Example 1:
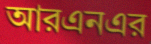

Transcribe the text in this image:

আরএনএর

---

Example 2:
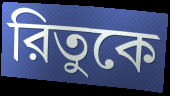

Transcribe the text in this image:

রিতুকে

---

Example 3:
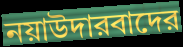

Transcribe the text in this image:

নয়াউদারবাদের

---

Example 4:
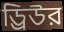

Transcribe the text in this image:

ড্রিউর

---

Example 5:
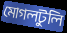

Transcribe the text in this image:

মোগলটুলি